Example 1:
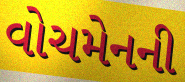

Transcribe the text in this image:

વોચમેનની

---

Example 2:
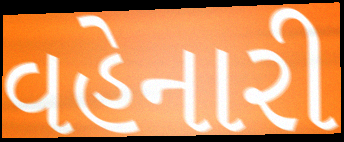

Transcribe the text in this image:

વહેનારી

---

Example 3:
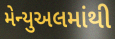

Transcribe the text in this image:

મેન્યુઅલમાંથી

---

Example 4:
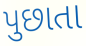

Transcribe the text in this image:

પુછાતા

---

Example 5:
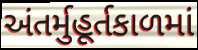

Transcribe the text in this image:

અંતર્મુહૂર્તકાળમાં